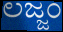
ಲಜ್ಜಂ